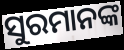
ସୁରମାନଙ୍କ